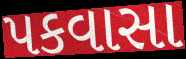
પકવાસા